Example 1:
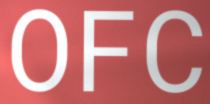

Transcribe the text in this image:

OFC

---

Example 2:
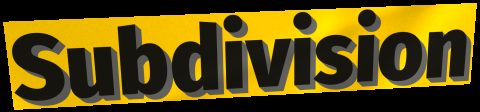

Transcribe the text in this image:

Subdivision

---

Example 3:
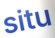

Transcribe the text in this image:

situ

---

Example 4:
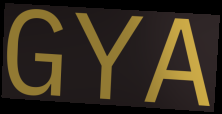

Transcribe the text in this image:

GYA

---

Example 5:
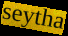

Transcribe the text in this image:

seytha